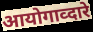
आयोगाव्दारे